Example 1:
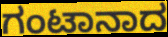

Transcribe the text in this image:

ಗಂಟಾನಾದ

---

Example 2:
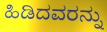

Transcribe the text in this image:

ಹಿಡಿದವರನ್ನು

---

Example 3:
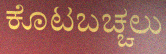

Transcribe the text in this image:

ಕೊಟಬಚ್ಚಲು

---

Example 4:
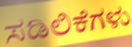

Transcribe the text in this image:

ಸಡಿಲಿಕೆಗಳು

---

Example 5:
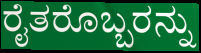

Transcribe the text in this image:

ರೈತರೊಬ್ಬರನ್ನು